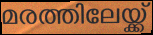
മരത്തിലേയ്ക്ക്